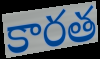
కారత